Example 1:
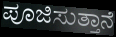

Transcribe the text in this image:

ಪೂಜಿಸುತ್ತಾನೆ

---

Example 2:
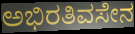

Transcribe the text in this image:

ಅಭಿರತಿವಸೇನ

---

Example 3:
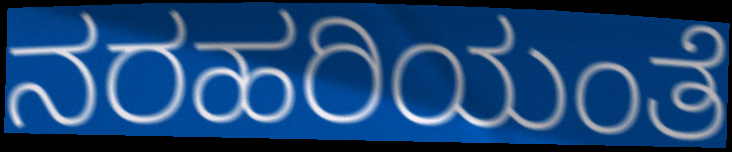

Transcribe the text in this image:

ನರಹರಿಯಂತೆ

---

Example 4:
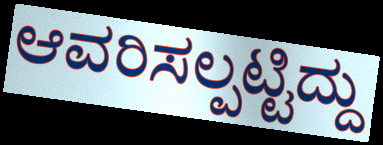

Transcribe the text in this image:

ಆವರಿಸಲ್ಪಟ್ಟಿದ್ದು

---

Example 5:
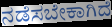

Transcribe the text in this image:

ನಡೆಸಬೇಕಾಗಿದೆ